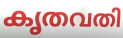
കൃതവതി